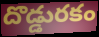
దొడ్డురకం